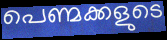
പെണ്മക്കളുടെ